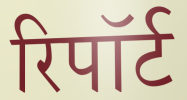
रिपॉर्ट